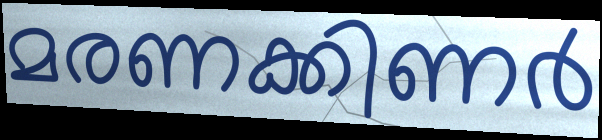
മരണക്കിണർ